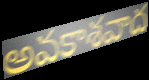
అవకాశవాద